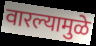
वारल्यामुळे